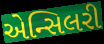
એન્સિલરી